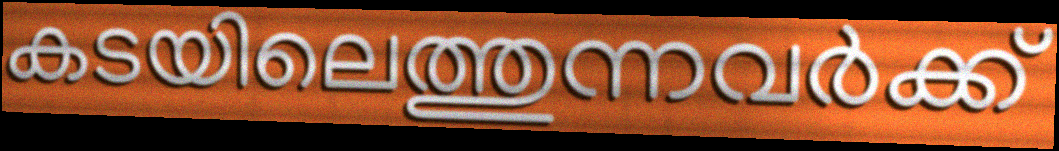
കടയിലെത്തുന്നവർക്ക്